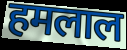
हमलाल